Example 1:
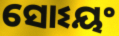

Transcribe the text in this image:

ସୋଽୟଂ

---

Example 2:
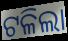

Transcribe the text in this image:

ଟଳିଲା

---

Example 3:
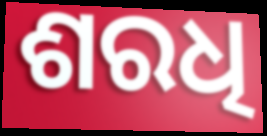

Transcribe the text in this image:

ଶରଧି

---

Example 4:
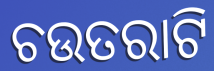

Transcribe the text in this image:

ଚଉତରାଟି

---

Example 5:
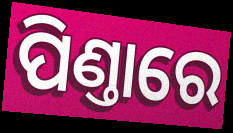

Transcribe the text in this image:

ପିଣ୍ତାରେ